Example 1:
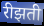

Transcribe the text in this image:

रीझती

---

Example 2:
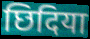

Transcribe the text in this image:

छिदिया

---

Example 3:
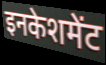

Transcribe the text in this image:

इनकेशमेंट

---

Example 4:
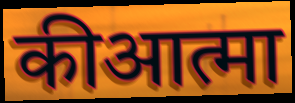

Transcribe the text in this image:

कीआत्मा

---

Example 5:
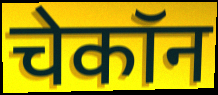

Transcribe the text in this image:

चेकॉन